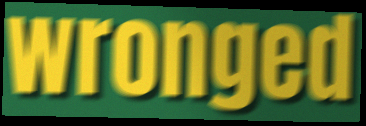
wronged